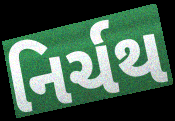
નિર્ચથ